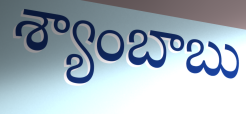
శ్యాంబాబు